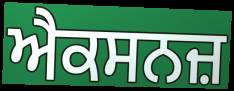
ਐਕਸਨਜ਼